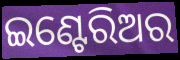
ଇଣ୍ଟେରିଅର